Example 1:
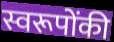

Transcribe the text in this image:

स्वरूपोंकी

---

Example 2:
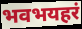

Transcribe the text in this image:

भवभयहरं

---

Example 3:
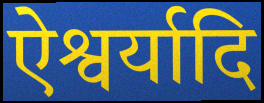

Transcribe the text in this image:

ऐश्वर्यादि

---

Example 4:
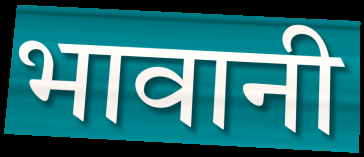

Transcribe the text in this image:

भावानी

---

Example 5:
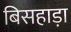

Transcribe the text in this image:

बिसहाड़ा